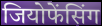
जियोफेंसिंग